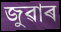
জুৱাৰ